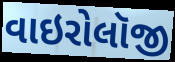
વાઇરોલૉજી